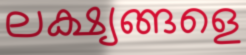
ലക്ഷ്യങ്ങളെ